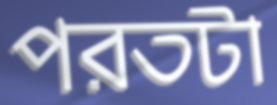
পরতটা